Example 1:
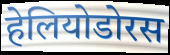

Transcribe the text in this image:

हेलियोडोरस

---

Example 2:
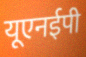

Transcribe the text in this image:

यूएनईपी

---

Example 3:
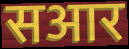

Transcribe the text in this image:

सआर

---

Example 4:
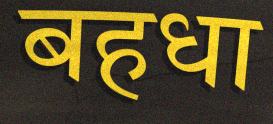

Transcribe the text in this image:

बहधा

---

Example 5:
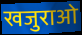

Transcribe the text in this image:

खजुराओ